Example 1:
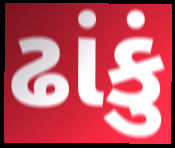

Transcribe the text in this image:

ઢાંકું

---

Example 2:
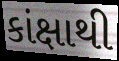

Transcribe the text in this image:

કાંક્ષાથી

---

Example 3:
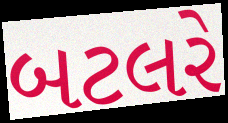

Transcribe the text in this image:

બટલરે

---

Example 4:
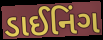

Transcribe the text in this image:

ડાઈનિંગ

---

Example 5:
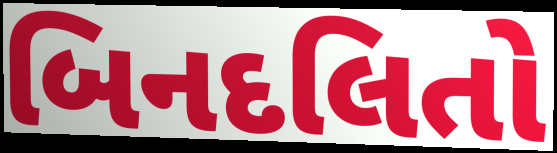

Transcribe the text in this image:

બિનદલિતો